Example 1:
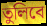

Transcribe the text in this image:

তুলিবে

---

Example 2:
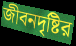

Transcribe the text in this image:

জীবনদৃষ্টির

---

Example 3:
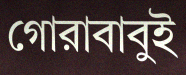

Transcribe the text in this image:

গোরাবাবুই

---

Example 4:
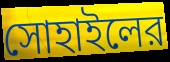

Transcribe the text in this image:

সোহাইলের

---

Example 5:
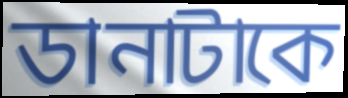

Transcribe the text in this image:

ডানাটাকে